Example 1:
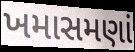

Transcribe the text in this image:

ખમાસમણાં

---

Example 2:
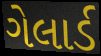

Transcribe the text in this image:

ગેલાર્ડ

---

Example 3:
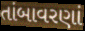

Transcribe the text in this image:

તાંબાવરણાં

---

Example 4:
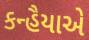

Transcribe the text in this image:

કન્હૈયાએ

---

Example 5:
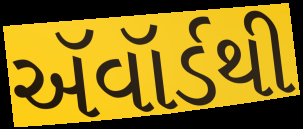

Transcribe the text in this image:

ઍવૉર્ડથી